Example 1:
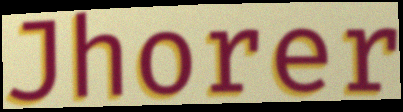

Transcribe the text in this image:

Jhorer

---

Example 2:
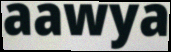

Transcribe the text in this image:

aawya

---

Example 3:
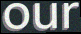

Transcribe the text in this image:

our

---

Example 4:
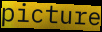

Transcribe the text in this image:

picture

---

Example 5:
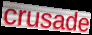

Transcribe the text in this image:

crusade